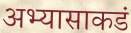
अभ्यासाकडं